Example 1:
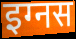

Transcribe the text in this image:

इग्नस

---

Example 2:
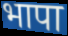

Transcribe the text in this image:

भापा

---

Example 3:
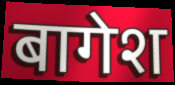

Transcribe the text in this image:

बागेश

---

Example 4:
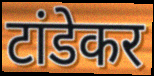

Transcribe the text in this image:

टांडेकर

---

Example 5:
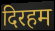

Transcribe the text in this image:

दिरहम